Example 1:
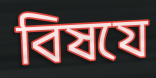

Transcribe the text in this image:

বিষযে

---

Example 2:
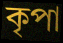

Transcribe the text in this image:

কৃপা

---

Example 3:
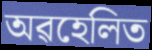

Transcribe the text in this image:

অৱহেলিত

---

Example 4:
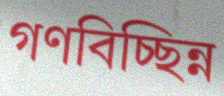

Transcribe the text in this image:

গণবিচ্ছিন্ন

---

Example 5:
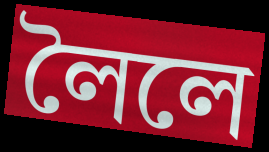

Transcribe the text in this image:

লৈলে